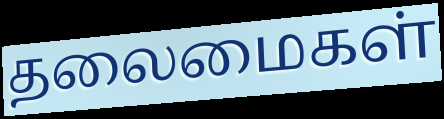
தலைமைகள்